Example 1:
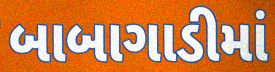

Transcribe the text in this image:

બાબાગાડીમાં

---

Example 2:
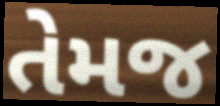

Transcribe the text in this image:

તેમજ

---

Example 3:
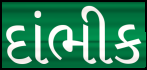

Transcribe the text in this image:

દાંભીક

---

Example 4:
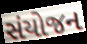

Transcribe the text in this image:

સંયોજન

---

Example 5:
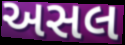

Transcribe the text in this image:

અસલ